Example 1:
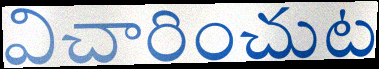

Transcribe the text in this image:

విచారించుట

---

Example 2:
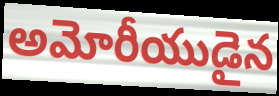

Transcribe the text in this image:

అమోరీయుడైన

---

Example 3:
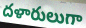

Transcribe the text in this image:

దళారులుగా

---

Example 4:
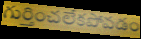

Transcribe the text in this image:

గుర్తించలేకపోవడం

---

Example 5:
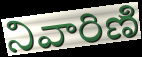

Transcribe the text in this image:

నివారిణి